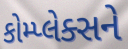
કોમ્પ્લેક્સને